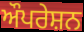
ਔਪਰੇਸ਼ਨ